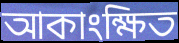
আকাংক্ষিত